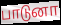
பாடுனா